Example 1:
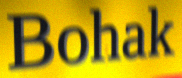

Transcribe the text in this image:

Bohak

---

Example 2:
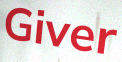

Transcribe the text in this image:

Giver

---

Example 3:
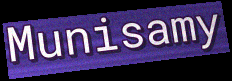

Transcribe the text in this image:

Munisamy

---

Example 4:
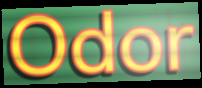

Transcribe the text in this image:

Odor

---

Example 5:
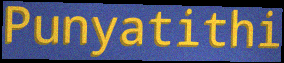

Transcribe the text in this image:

Punyatithi